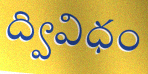
ద్వివిధం